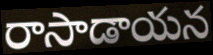
రాసాడాయన